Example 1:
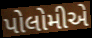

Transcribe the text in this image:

પોલોમીએ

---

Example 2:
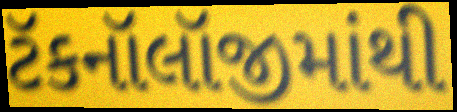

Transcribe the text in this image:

ટૅકનૉલૉજીમાંથી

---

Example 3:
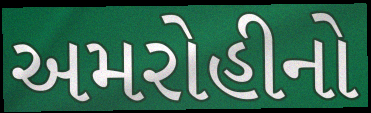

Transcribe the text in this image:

અમરોહીનો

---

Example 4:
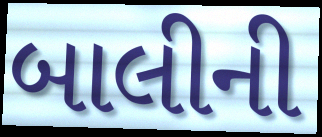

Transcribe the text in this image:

બાલીની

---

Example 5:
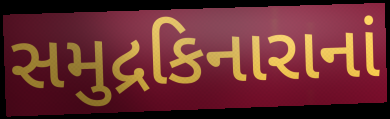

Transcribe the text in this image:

સમુદ્રકિનારાનાં